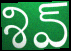
శివ్